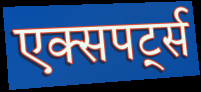
एक्सपर्ट्स